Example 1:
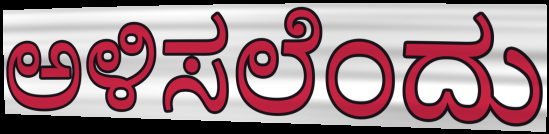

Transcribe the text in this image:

ಅಳಿಸಲೆಂದು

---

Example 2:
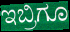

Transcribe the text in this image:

ಇಬ್ರಿಗೂ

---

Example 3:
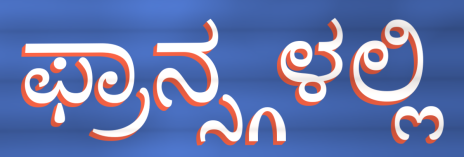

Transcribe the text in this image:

ಫ್ರಾನ್ಸ್ಗಳಲ್ಲಿ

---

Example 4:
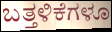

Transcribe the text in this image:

ಬತ್ತಳಿಕೆಗಳೂ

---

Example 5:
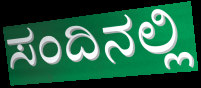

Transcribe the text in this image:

ಸಂದಿನಲ್ಲಿ